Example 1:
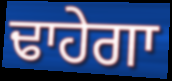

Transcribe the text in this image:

ਢਾਹੇਗਾ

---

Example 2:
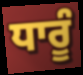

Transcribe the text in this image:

ਧਾਰੂੰ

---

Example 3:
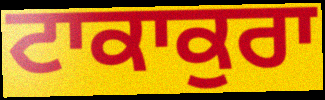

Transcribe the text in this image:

ਟਾਕਾਕੁਰਾ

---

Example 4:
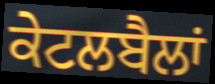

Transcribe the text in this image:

ਕੇਟਲਬੈਲਾਂ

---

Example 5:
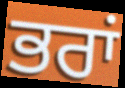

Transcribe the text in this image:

ਭਰਾਂ